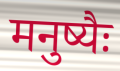
मनुष्यैः